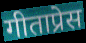
गीताप्रेस